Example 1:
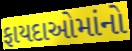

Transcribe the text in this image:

ફાયદાઓમાંનો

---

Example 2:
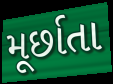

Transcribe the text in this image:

મૂર્છાતા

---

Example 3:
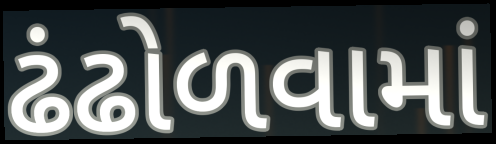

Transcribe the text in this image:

ઢંઢોળવામાં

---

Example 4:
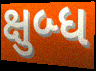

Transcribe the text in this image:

ક્ષુબ્ધ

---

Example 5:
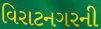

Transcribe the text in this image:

વિરાટનગરની